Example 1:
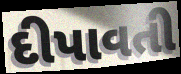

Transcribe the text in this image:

દીપાવતી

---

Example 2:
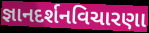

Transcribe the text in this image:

જ્ઞાનદર્શનવિચારણા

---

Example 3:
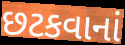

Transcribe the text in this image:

છટકવાનાં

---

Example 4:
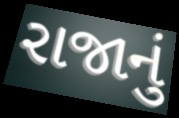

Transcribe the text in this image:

રાજાનું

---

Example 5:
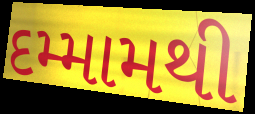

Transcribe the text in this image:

દમ્મામથી